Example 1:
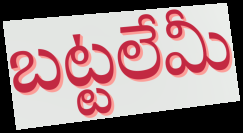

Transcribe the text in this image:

బట్టలేమీ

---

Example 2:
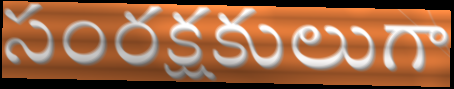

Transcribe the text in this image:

సంరక్షకులుగా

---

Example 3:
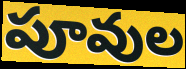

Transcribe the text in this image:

పూవుల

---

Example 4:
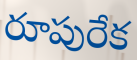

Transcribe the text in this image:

రూపురేక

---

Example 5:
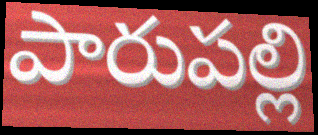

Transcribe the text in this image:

పారుపల్లి